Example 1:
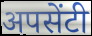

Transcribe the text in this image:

अपसेंटी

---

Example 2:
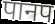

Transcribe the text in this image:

पानप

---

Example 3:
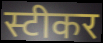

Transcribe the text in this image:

स्टीकर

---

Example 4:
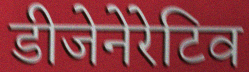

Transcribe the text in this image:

डीजेनेरेटिव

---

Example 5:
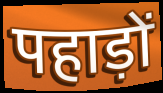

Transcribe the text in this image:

पहाड़ों